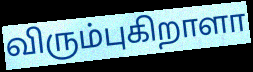
விரும்புகிறாளா